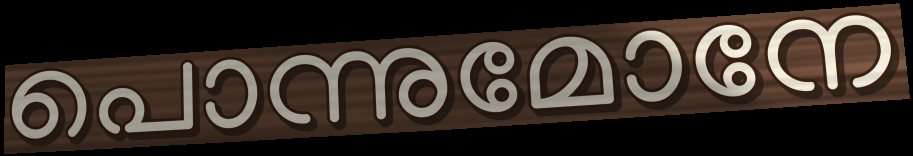
പൊന്നുമോനേ